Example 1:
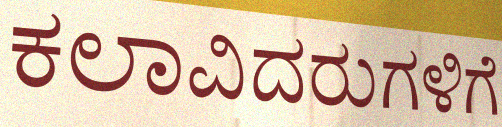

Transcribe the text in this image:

ಕಲಾವಿದರುಗಳಿಗೆ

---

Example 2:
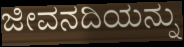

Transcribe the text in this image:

ಜೀವನದಿಯನ್ನು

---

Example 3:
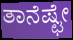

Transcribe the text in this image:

ತಾನೆಷ್ಟೇ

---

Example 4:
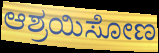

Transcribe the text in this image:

ಆಶ್ರಯಿಸೋಣ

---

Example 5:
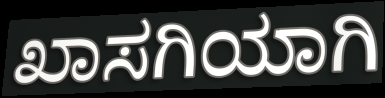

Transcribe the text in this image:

ಖಾಸಗಿಯಾಗಿ